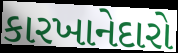
કારખાનેદારો